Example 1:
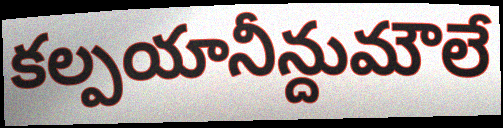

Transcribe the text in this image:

కల్పయానీన్దుమౌలే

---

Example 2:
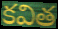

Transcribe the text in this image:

కవిత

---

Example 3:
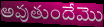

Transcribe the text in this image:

అవుతుందేమొ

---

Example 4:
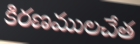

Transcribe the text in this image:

కిరణములచేత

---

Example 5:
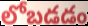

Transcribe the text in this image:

లోబడడం